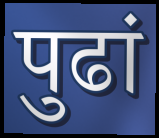
पुढां